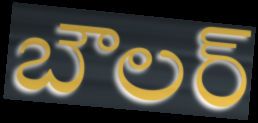
బౌలర్